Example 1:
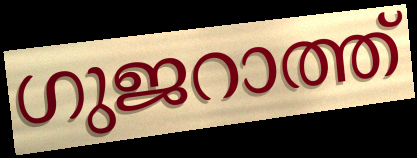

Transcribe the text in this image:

ഗുജറാത്ത്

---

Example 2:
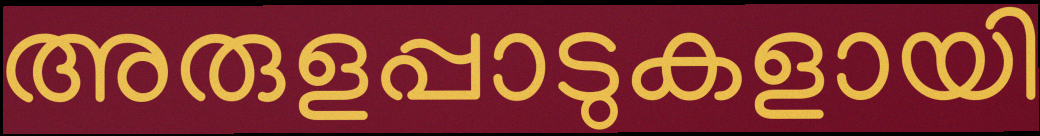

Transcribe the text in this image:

അരുളപ്പാടുകളായി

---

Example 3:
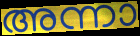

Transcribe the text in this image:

അന്നാ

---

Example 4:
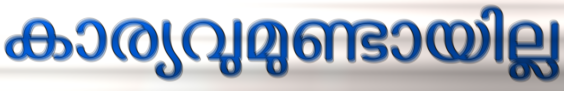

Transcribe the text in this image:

കാര്യവുമുണ്ടായില്ല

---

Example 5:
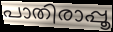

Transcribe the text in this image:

പാതിരാപ്പൂ